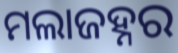
ମଲାଜହ୍ନର